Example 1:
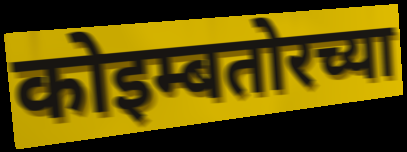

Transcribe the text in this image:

कोइम्बतोरच्या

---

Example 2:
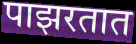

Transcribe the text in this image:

पाझरतात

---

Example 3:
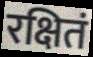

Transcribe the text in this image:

रक्षितं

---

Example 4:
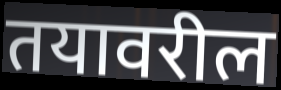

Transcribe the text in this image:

तयावरील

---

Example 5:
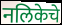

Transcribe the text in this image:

नलिकेचे